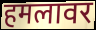
हमलावर